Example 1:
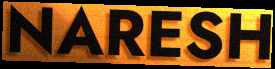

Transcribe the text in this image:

NARESH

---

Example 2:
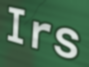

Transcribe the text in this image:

Irs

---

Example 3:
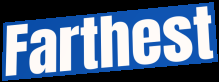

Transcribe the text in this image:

Farthest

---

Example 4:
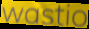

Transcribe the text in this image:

wastio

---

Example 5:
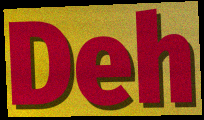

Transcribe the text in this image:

Deh